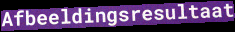
Afbeeldingsresultaat